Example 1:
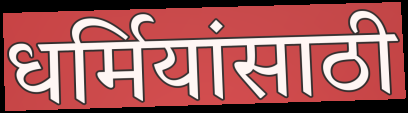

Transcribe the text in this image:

धर्मियांसाठी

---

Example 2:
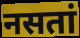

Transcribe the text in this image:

नसतां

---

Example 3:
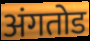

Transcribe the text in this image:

अंगतोड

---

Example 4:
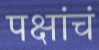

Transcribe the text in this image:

पक्षांचं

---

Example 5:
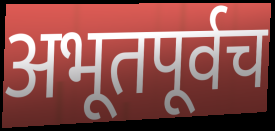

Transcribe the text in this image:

अभूतपूर्वच